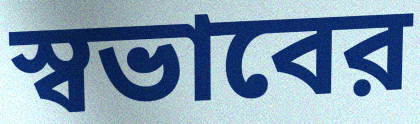
স্বভাবের